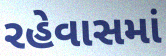
રહેવાસમાં